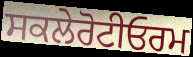
ਸਕਲੇਰੋਟੀਓਰਮ